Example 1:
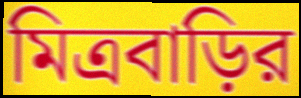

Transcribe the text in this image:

মিত্রবাড়ির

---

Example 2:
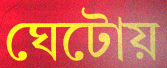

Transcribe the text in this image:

ঘেটোয়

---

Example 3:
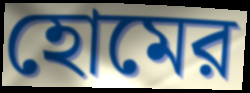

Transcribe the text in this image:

হোমের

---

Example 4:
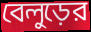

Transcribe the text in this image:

বেলুড়ের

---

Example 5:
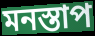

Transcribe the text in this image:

মনস্তাপ